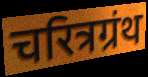
चरित्रग्रंथ